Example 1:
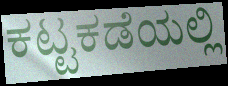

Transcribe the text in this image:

ಕಟ್ಟಕಡೆಯಲ್ಲಿ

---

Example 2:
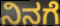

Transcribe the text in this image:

ನಿನಗೆ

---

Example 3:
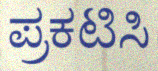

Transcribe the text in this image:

ಪ್ರಕಟಿಸಿ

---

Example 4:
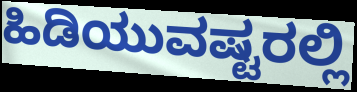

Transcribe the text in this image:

ಹಿಡಿಯುವಷ್ಟರಲ್ಲಿ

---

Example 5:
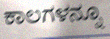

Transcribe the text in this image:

ಕಾಲಗಳನ್ನೂ